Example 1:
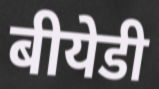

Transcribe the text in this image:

बीयेडी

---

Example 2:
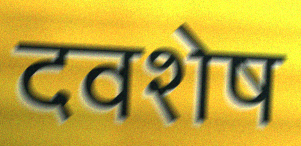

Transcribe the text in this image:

दवशेष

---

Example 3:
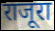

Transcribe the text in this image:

राजूरा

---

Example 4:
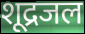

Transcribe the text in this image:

शूद्रजल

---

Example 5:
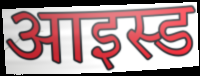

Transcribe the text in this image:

आइस्ड